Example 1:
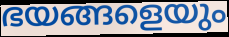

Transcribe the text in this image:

ഭയങ്ങളെയും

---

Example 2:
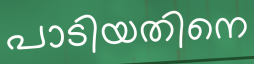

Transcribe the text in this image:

പാടിയതിനെ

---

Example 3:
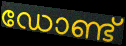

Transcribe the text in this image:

ഡോണ്ട്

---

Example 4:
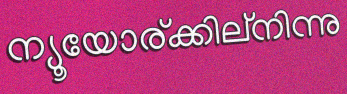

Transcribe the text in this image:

ന്യൂയോര്ക്കില്നിന്നു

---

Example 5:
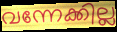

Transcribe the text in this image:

വന്നേക്കില്ല